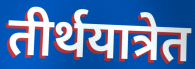
तीर्थयात्रेत